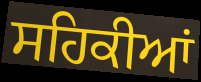
ਸਹਿਕੀਆਂ